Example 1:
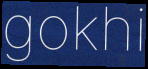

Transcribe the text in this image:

gokhi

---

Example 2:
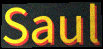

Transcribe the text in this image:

Saul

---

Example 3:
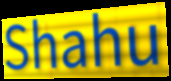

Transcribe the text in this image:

Shahu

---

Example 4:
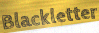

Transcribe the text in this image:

Blackletter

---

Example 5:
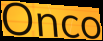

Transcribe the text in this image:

Onco